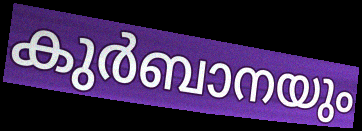
കുർബാനയും